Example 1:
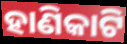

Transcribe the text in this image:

ହାଣିକାଟି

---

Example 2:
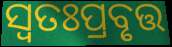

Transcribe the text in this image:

ସ୍ବତଃପ୍ରବୃତ୍ତ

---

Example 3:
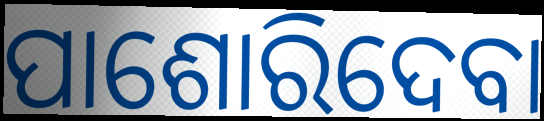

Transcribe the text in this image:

ପାଶୋରିଦେବା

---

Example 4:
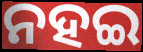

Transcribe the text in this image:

ନହଇ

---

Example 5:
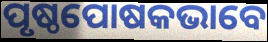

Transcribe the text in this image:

ପୃଷ୍ଠପୋଷକଭାବେ